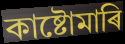
কাষ্টোমাৰি